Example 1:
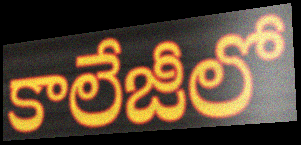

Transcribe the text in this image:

కాలేజీలో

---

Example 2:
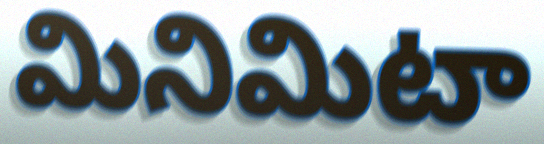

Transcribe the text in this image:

మినిమిటా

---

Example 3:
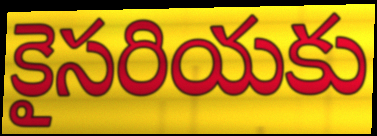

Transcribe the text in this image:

కైసరియకు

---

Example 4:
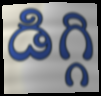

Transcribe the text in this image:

డిగ్గి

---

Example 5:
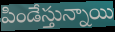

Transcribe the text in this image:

పిండేస్తున్నాయి